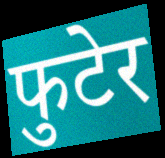
फुटेर